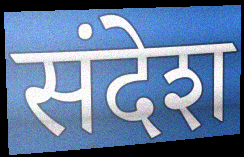
संदेश